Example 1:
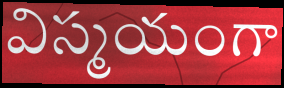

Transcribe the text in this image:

విస్మయంగా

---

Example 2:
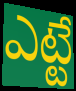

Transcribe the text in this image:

ఎట్టే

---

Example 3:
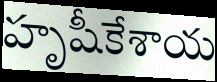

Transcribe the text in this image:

హృషీకేశాయ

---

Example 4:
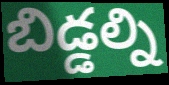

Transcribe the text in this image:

బిడ్డల్ని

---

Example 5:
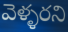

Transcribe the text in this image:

వెళ్ళరని